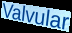
Valvular